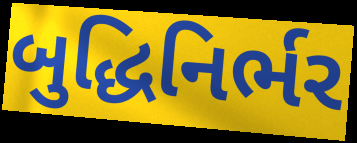
બુદ્ધિનિર્ભર